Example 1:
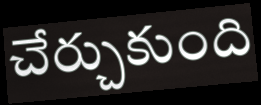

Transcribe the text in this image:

చేర్చుకుంది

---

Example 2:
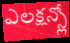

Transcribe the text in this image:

ఎలక్షన్స్లో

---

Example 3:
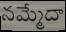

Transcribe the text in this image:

నమ్మేదా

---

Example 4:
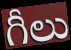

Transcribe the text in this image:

గీలు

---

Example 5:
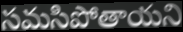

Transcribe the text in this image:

సమసిపోతాయని